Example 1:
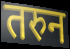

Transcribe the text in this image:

तरुन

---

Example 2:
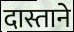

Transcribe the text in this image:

दास्ताने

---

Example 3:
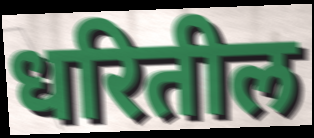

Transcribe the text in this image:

धरितील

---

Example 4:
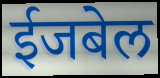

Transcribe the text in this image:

ईजबेल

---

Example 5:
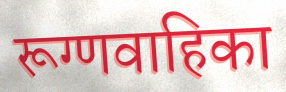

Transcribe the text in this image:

रूग्णवाहिका